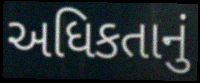
અધિકતાનું